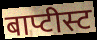
बाप्टीस्ट